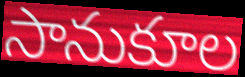
సానుకూల